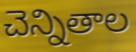
చెన్నితాల